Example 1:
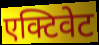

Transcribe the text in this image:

एक्टिवेट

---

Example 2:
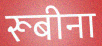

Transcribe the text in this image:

रूबीना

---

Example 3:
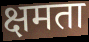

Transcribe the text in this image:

क्षमता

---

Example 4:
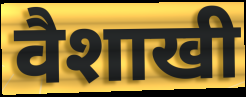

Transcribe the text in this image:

वैशाखी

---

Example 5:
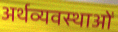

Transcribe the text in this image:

अर्थव्यवस्थाओं